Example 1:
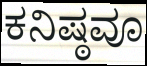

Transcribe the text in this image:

ಕನಿಷ್ಠವೂ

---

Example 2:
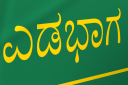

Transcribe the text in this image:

ಎಡಭಾಗ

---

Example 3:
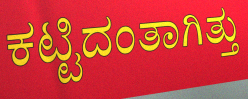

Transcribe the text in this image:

ಕಟ್ಟಿದಂತಾಗಿತ್ತು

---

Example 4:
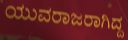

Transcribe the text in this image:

ಯುವರಾಜರಾಗಿದ್ದ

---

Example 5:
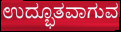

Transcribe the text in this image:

ಉದ್ಭೂತವಾಗುವ